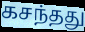
கசந்தது